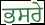
ਭਸਰੇ